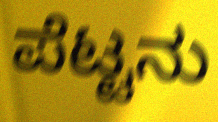
ಪೆಟ್ಟನು